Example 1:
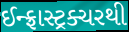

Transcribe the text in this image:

ઈન્ફ્રાસ્ટ્રક્ચરથી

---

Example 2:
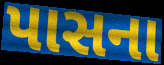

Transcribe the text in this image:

પાસના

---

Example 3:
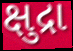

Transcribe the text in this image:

ક્ષુદ્રા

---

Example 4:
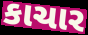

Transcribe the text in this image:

કાચાર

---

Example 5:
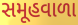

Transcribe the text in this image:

સમૂહવાળા